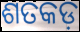
ଶତକଡ଼